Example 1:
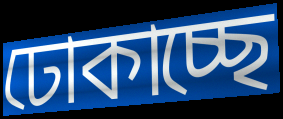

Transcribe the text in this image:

ঢোকাচ্ছে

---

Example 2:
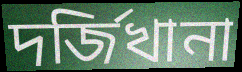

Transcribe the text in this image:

দর্জিখানা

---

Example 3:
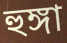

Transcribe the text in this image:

হুঙ্গা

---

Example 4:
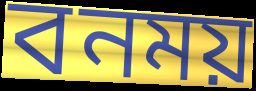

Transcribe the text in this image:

বনময়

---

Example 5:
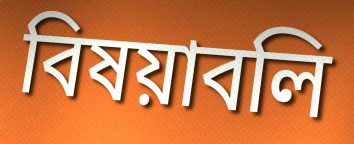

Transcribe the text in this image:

বিষয়াবলি